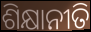
ଶିକ୍ଷାନୀତି